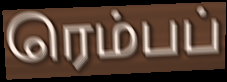
ரெம்பப்